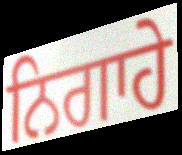
ਨਿਗਾਹੇ